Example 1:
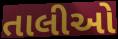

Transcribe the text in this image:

તાલીઓ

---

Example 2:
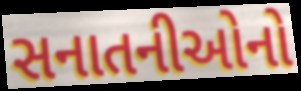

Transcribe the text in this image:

સનાતનીઓનો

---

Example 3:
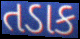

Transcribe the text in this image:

તડાક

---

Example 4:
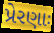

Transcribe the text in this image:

પ્રેરણાઃ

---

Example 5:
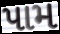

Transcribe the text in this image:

પામ